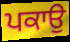
ਪਕਾਉ